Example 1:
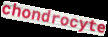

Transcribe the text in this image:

chondrocyte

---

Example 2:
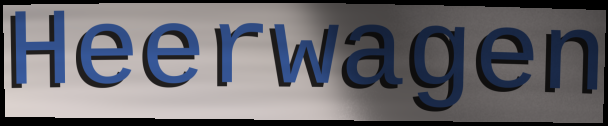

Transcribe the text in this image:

Heerwagen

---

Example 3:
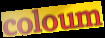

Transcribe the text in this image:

coloum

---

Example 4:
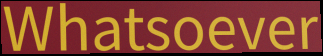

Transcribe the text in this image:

Whatsoever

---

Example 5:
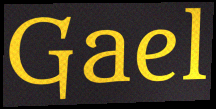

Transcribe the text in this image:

Gael